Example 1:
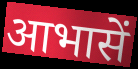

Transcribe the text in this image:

आभासें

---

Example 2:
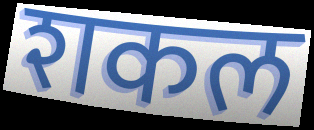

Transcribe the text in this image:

शकल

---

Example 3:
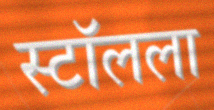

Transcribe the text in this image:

स्टॉलला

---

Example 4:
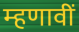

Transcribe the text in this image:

म्हणावीं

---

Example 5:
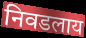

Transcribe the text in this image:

निवडलाय